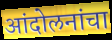
आंदोलनांचा